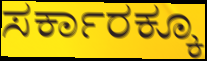
ಸರ್ಕಾರಕ್ಕೂ